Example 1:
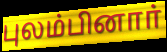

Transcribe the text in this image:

புலம்பினார்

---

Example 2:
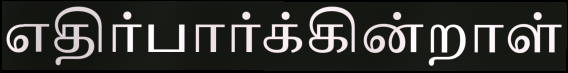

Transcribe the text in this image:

எதிர்பார்க்கின்றாள்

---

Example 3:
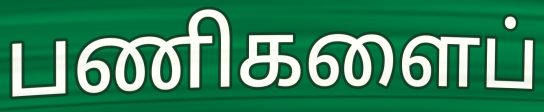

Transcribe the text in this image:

பணிகளைப்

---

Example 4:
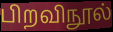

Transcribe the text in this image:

பிறவிநூல்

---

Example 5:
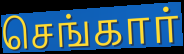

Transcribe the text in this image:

செங்கார்